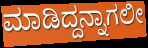
ಮಾಡಿದ್ದನ್ನಾಗಲೀ